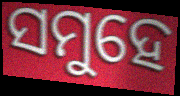
ସମୁହେ